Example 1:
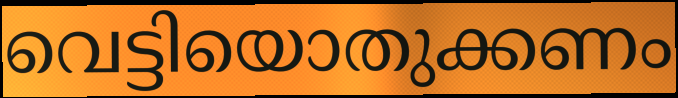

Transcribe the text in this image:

വെട്ടിയൊതുക്കണം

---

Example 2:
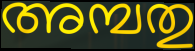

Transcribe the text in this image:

അമ്പതു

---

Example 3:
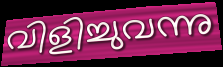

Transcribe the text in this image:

വിളിച്ചുവന്നു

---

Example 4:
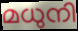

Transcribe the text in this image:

മധുനി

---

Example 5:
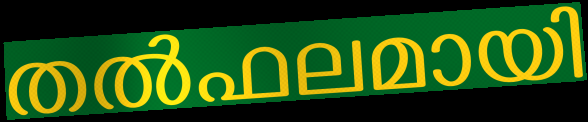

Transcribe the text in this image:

തൽഫലമായി